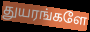
துயரங்களே